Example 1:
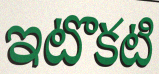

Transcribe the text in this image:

ఇటొకటి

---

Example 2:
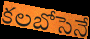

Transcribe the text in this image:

కలబోసెనే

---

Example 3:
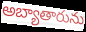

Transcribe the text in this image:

అబ్యాతారును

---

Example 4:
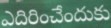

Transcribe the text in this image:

ఎదిరించేందుకు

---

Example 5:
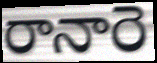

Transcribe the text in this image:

రానారె